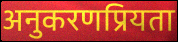
अनुकरणप्रियता